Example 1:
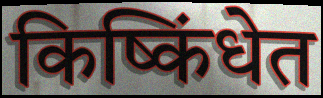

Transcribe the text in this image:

किष्किंधेत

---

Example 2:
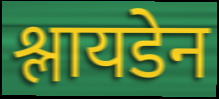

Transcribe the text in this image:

श्लायडेन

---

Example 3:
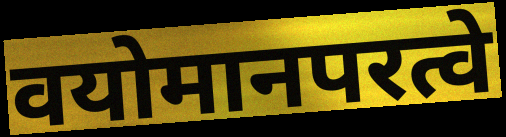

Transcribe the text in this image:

वयोमानपरत्वे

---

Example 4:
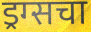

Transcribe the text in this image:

ड्रग्सचा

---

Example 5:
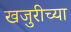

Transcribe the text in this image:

खजुरीच्या